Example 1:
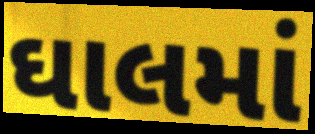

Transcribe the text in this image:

ઘાલમાં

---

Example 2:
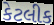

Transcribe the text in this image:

કેટલીક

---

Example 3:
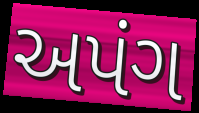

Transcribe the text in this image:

અપંગ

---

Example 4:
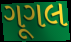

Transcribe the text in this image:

ગૂગલ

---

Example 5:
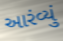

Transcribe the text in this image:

આરંવ્યું